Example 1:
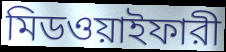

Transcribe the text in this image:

মিডওয়াইফারী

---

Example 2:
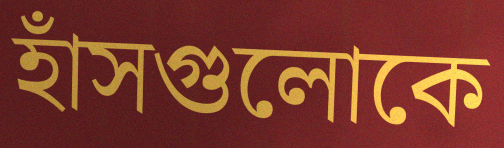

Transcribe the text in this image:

হাঁসগুলোকে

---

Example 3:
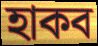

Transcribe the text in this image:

হাকব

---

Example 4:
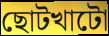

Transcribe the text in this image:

ছোটখাটো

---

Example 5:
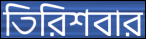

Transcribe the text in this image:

তিরিশবার